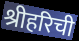
श्रीहरिची